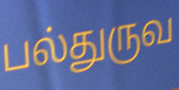
பல்துருவ